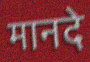
मानदे